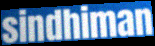
sindhiman